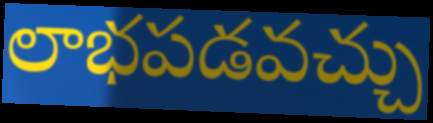
లాభపడవచ్చు